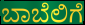
ಬಾಬೆಲಿಗೆ